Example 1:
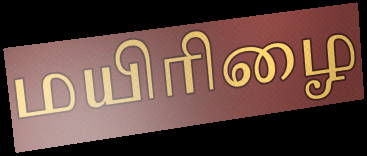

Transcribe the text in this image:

மயிரிழை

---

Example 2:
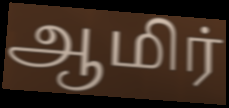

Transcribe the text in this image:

ஆமிர்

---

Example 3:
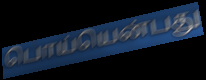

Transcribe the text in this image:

பொய்யென்பது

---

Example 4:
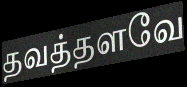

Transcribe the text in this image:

தவத்தளவே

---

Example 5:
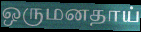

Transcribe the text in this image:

ஒருமனதாய்